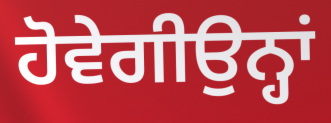
ਹੋਵੇਗੀਉਨ੍ਹਾਂ